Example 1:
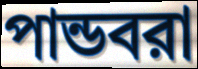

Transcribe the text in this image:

পান্ডবরা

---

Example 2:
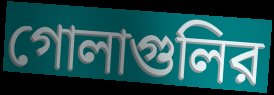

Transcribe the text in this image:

গোলাগুলির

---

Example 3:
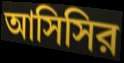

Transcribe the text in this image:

আসিসির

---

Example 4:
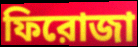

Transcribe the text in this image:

ফিরোজা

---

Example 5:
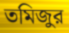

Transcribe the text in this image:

তমিজুর